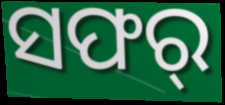
ସଫର୍